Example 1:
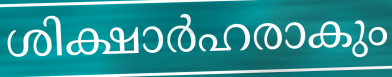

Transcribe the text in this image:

ശിക്ഷാർഹരാകും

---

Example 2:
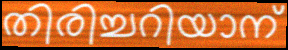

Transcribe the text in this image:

തിരിച്ചറിയാന്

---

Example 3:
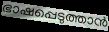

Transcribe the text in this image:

ഭാഷപ്പെടുത്താൻ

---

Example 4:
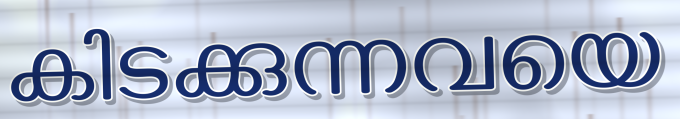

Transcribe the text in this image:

കിടക്കുന്നവയെ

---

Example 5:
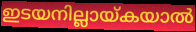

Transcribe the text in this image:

ഇടയനില്ലായ്കയാൽ